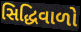
સિદ્ધિવાળો